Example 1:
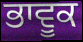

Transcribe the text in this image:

ਭਾਵੂਕ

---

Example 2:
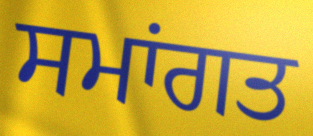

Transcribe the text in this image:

ਸਮਾਂਗਤ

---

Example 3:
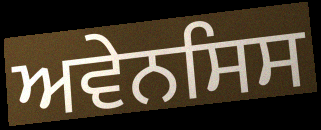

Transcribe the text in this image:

ਅਵੇਨਸਿਸ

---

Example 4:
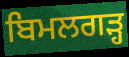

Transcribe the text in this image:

ਬਿਮਲਗੜ੍ਹ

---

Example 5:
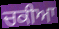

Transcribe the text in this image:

ਚਕੀਆ